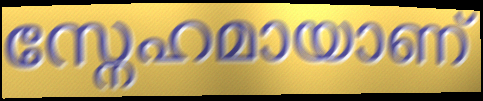
സ്നേഹമായാണ്